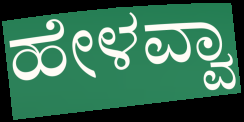
ಹೇಳವ್ವಾ